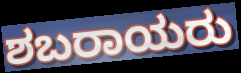
ಶಬರಾಯರು